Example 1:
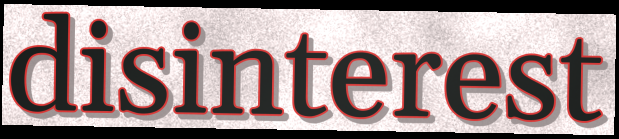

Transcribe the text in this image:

disinterest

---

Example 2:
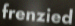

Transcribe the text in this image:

frenzied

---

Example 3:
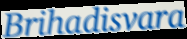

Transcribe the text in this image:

Brihadisvara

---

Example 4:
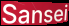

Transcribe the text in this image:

Sansei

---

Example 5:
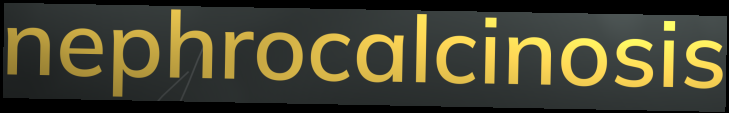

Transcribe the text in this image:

nephrocalcinosis